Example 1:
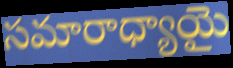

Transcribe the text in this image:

సమారాధ్యాయై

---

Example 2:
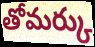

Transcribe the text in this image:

తోమర్కు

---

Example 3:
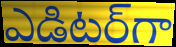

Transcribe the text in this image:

ఎడిటర్‌గా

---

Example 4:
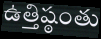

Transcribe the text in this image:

ఉత్తిష్ఠంతు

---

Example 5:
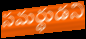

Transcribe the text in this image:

సమర్థుడని